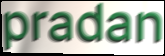
pradan